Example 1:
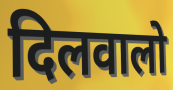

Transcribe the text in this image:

दिलवालो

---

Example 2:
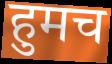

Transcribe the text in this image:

हुमच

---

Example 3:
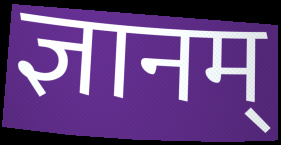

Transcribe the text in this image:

ज्ञानम्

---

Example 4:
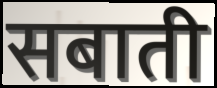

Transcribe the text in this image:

सबाती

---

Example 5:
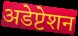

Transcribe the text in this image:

अडेप्टेशन